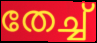
തേച്ച്